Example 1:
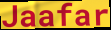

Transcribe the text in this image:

Jaafar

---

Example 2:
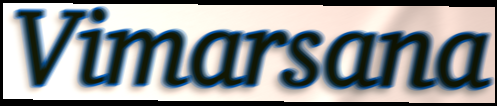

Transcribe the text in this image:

Vimarsana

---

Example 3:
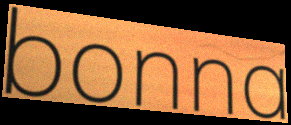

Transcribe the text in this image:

bonna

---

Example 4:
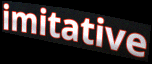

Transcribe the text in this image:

imitative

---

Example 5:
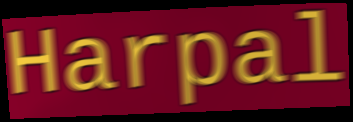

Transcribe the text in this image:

Harpal